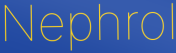
Nephrol